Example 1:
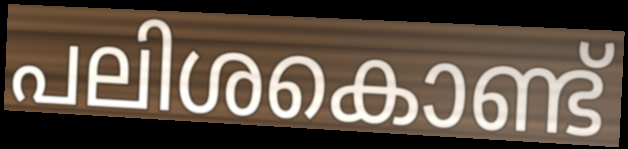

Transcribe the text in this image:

പലിശകൊണ്ട്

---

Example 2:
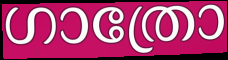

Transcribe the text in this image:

ഗാത്രോ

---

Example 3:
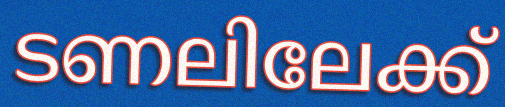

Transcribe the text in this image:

ടണലിലേക്ക്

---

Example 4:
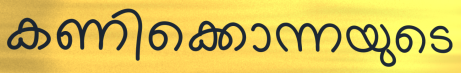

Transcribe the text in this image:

കണിക്കൊന്നയുടെ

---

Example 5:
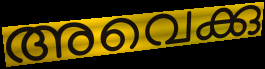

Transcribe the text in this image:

അവെക്കു